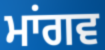
ਮਾਂਗਵ